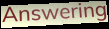
Answering